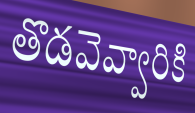
తొడవెవ్వారికి